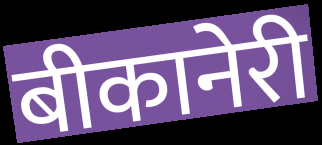
बीकानेरी